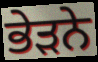
ਭੇੜਨੇ